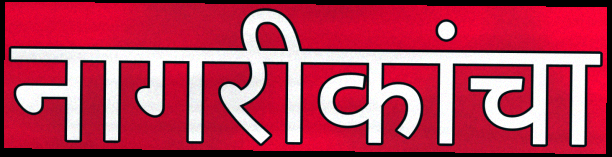
नागरीकांचा